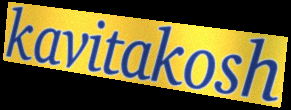
kavitakosh